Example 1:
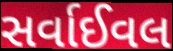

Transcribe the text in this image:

સર્વાઈવલ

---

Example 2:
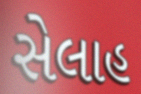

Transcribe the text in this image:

સેલાહ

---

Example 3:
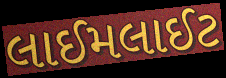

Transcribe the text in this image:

લાઈમલાઈટ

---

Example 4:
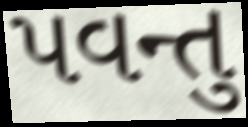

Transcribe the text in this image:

પવન્તુ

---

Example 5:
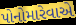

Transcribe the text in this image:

પોનોમારેવાએ